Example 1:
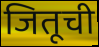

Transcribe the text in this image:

जितूची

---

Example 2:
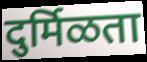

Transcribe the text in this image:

दुर्मिळता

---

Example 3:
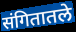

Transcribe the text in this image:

संगितातले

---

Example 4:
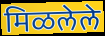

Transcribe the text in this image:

मिळलेले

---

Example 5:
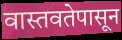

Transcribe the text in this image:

वास्तवतेपासून